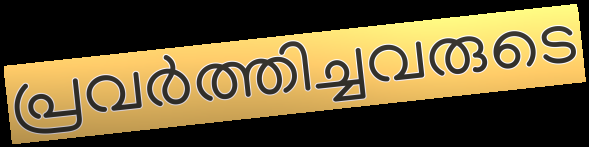
പ്രവർത്തിച്ചവരുടെ